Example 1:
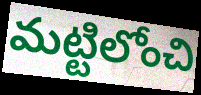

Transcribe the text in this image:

మట్టిలోంచి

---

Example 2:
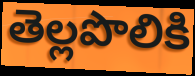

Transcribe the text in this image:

తెల్లపొలికి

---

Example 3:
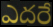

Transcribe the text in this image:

ఎదరే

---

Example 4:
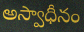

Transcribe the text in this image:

అస్వాధీనం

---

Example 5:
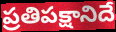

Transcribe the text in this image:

ప్రతిపక్షానిదే